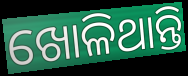
ଖୋଳିଥାନ୍ତି